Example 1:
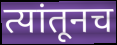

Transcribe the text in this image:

त्यांतूनच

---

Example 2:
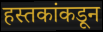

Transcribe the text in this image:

हस्तकांकडून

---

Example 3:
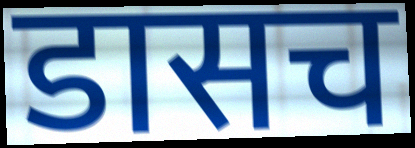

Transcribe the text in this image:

डासच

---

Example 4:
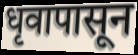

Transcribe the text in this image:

धृवापासून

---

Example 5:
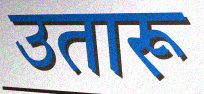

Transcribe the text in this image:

उतारू